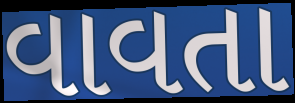
વાવતા